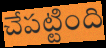
చేపట్టింది